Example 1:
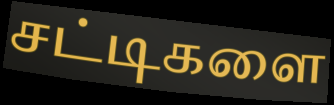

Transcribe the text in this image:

சட்டிகளை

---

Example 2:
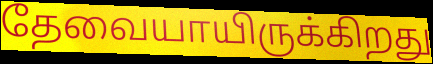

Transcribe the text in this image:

தேவையாயிருக்கிறது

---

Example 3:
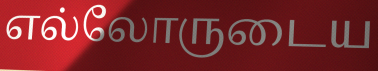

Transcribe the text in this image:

எல்லோருடைய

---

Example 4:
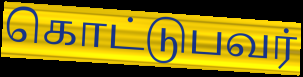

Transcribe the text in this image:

கொட்டுபவர்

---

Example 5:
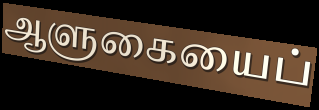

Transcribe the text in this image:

ஆளுகையைப்